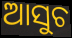
ଆସୁଚ